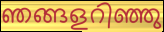
ഞങ്ങളറിഞ്ഞു